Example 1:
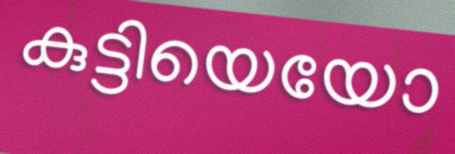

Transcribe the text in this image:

കുട്ടിയെയോ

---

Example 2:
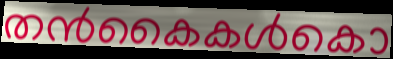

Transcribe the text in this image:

തൻകൈകൾകൊ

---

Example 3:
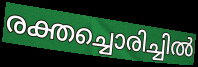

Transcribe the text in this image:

രക്തച്ചൊരിച്ചിൽ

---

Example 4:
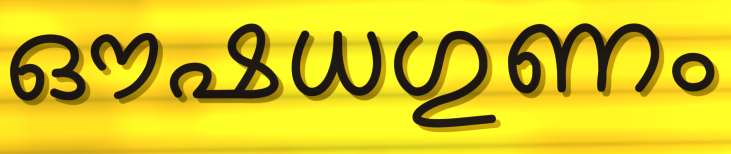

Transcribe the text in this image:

ഔഷധഗുണം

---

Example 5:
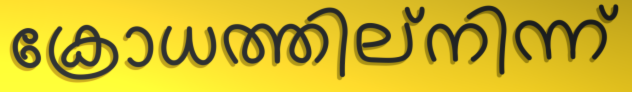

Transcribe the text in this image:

ക്രോധത്തില്നിന്ന്